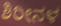
ಶಿರೀನಳ